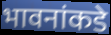
भावनांकडे